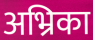
अभ्रिका